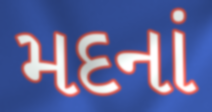
મદનાં